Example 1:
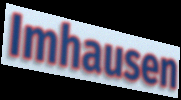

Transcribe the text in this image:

Imhausen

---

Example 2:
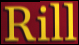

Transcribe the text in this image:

Rill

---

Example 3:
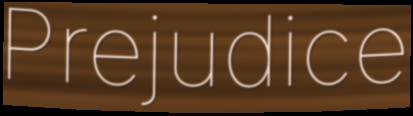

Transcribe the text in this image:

Prejudice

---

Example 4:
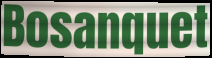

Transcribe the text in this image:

Bosanquet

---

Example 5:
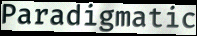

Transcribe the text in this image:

Paradigmatic